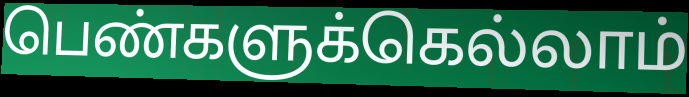
பெண்களுக்கெல்லாம்